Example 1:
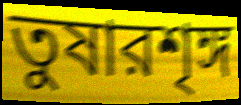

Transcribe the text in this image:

তুষারশৃঙ্গ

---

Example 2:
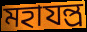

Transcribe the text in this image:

মহাযন্ত্র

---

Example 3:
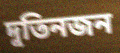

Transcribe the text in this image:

দুতিনজন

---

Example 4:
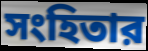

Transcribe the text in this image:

সংহিতার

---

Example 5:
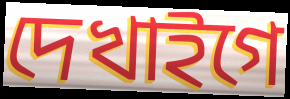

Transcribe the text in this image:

দেখাইগে